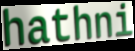
hathni